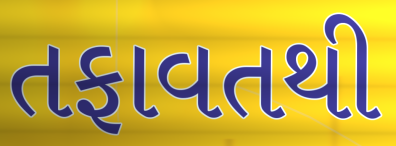
તફાવતથી